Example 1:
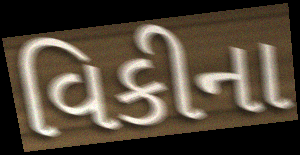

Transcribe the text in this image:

વિકીના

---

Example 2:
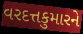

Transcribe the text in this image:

વરદત્તકુમારને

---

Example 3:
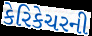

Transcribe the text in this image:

કેરિકેચરની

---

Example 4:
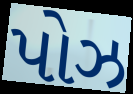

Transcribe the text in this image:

પોઝ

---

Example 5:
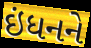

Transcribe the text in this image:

ઇંધનને